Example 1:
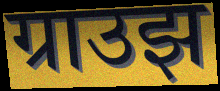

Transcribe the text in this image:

ग्राउझ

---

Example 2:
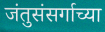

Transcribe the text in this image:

जंतुसंसर्गाच्या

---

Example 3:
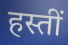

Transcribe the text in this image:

हस्तीं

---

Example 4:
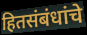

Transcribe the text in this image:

हितसंबंधांचे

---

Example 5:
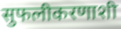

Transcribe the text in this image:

सुफलीकरणाशी